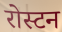
रोस्टन